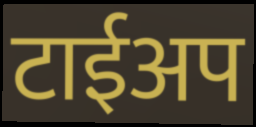
टाईअप